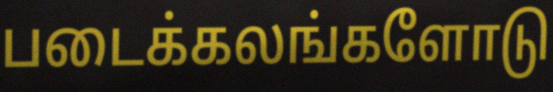
படைக்கலங்களோடு